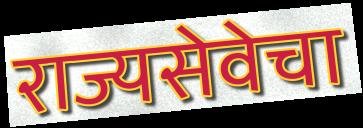
राज्यसेवेचा